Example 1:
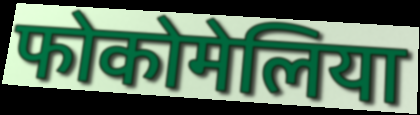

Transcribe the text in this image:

फोकोमेलिया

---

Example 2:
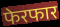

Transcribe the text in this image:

फेरफार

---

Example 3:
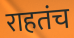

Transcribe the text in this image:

राहतंच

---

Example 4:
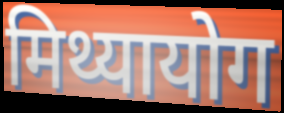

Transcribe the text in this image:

मिथ्यायोग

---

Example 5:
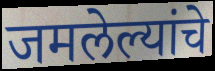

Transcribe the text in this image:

जमलेल्यांचे